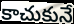
కాచుకునే